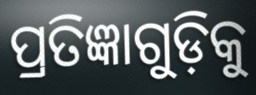
ପ୍ରତିଜ୍ଞାଗୁଡ଼ିକୁ